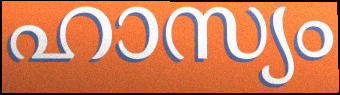
ഹാസ്യം